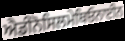
ਐਡੀਨੋਸਿਲਮੇਥਿਓਨਾਈਨ